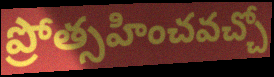
ప్రోత్సహించవచ్చో